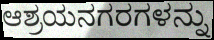
ಆಶ್ರಯನಗರಗಳನ್ನು